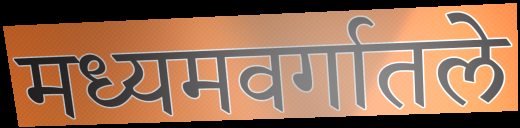
मध्यमवर्गातले